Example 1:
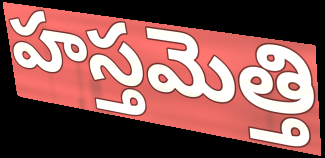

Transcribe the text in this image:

హస్తమెత్తి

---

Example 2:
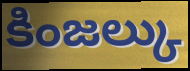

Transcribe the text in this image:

కింజల్కు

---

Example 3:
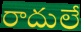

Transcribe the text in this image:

రాదులే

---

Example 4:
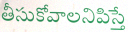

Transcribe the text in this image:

తీసుకోవాలనిపిస్తే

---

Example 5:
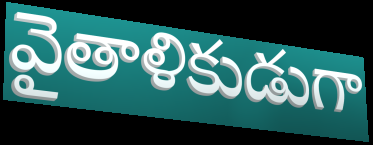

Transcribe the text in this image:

వైతాళికుడుగా